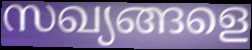
സഖ്യങ്ങളെ